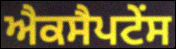
ਐਕਸੈਪਟੇਂਸ